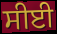
ਸੀਈ